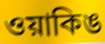
ওয়াকিঙ